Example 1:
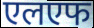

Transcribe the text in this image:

एलएफ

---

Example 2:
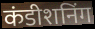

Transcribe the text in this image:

कंडीशनिंग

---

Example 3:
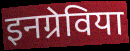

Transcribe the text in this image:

इनग्रेविया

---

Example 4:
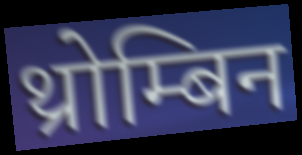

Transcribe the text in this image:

थ्रोम्बिन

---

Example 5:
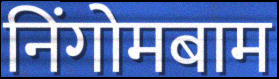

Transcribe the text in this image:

निंगोमबाम